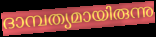
ദാമ്പത്യമായിരുന്നു